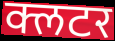
क्लटर